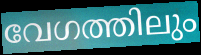
വേഗത്തിലും